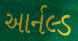
આર્નલ્ડ